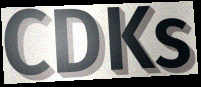
CDKs